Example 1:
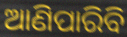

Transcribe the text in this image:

ଆଣିପାରିବି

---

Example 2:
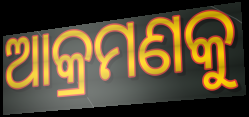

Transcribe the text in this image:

ଆକ୍ରମଣକୁ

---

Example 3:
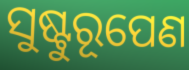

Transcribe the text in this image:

ସୁଷ୍ଟୁରୂପେଣ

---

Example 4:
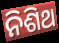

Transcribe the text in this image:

ନିଶିଥ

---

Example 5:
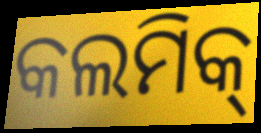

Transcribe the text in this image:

କଲମିକ୍